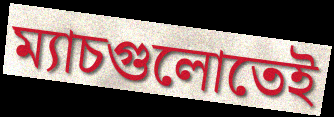
ম্যাচগুলোতেই